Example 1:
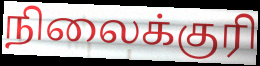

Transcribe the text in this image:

நிலைக்குரி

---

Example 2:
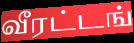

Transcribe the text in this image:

வீரட்டங்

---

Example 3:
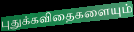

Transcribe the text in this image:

புதுக்கவிதைகளையும்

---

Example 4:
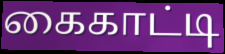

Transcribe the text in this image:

கைகாட்டி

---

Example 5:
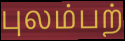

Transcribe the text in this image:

புலம்பற்